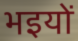
भइयों